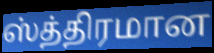
ஸ்த்திரமான